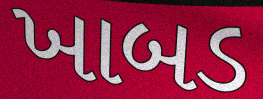
ખાબડ